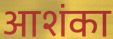
आशंका